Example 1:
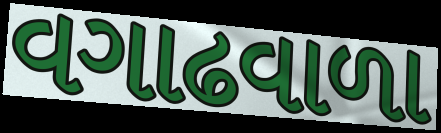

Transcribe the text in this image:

વગાઢવાળા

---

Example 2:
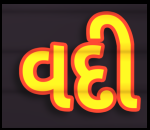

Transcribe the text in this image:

વદી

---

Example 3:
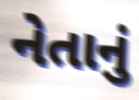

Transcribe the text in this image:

નેતાનું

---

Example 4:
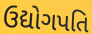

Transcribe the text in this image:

ઉદ્યોગપતિ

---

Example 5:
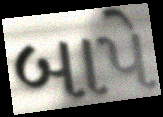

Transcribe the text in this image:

બાપે